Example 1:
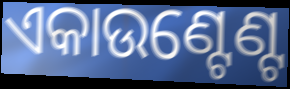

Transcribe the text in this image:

ଏକାଉଣ୍ଟେଣ୍ଟ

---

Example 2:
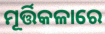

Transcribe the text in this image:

ମୂର୍ତ୍ତିକଳାରେ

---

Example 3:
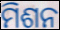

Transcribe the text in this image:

ମିଶନ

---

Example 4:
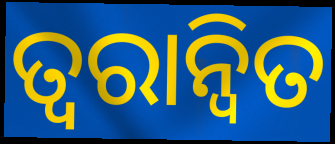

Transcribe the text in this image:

ତ୍ୱରାନ୍ୱିତ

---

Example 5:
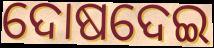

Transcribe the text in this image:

ଦୋଷଦେଇ